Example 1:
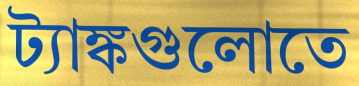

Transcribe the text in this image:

ট্যাঙ্কগুলোতে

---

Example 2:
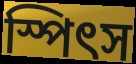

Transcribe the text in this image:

স্পিৎস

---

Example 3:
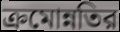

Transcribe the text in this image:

ক্রমোন্নতির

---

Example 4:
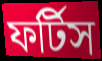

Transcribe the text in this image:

ফর্টিস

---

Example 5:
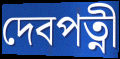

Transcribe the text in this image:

দেবপত্নী